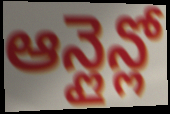
ఆన్లైన్లో